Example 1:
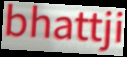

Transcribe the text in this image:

bhattji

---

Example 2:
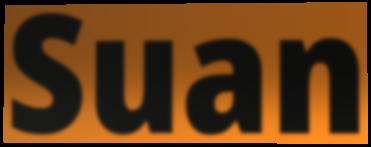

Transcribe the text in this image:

Suan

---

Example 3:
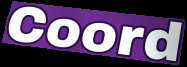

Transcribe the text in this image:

Coord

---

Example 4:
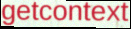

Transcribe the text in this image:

getcontext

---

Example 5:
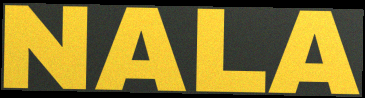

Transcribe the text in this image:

NALA